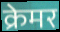
क्रेमर